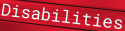
Disabilities